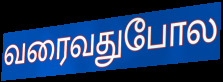
வரைவதுபோல